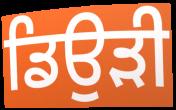
ਡਿਉੜੀ